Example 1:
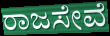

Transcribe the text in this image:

ರಾಜಸೇವೆ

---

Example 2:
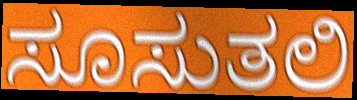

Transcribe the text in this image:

ಸೂಸುತಲಿ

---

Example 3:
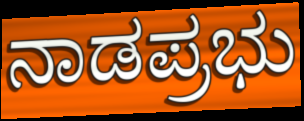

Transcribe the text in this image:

ನಾಡಪ್ರಭು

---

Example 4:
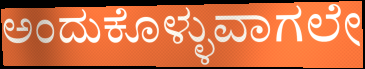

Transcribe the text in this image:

ಅಂದುಕೊಳ್ಳುವಾಗಲೇ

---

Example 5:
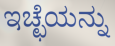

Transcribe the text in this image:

ಇಚ್ಛೆಯನ್ನು